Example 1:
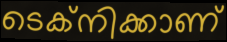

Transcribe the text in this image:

ടെക്നിക്കാണ്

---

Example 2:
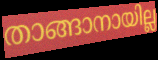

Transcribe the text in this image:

താങ്ങാനായില്ല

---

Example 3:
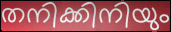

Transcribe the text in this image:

തനിക്കിനിയും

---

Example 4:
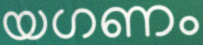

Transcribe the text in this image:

യഗണം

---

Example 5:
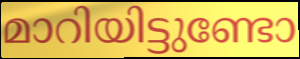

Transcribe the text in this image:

മാറിയിട്ടുണ്ടോ